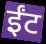
ईंट